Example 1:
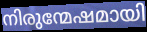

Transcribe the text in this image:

നിരുന്മേഷമായി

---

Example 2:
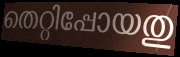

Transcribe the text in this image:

തെറ്റിപ്പോയതു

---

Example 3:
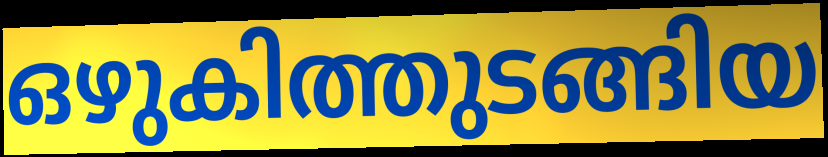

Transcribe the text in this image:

ഒഴുകിത്തുടങ്ങിയ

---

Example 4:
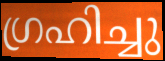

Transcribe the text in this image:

ഗ്രഹിച്ചു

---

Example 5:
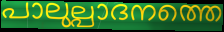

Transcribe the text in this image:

പാലുല്പാദനത്തെ